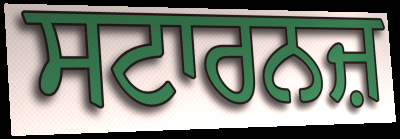
ਸਟਾਰਨਜ਼